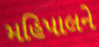
મહિપાલને